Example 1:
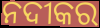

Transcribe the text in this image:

ନଦୀକର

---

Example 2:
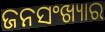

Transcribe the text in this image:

ଜନସଂଖ୍ଯାର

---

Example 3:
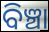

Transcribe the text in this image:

ବିଞ୍ଚା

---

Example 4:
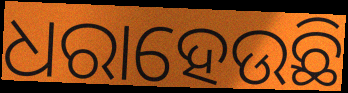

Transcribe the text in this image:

ଧରାହେଉଛି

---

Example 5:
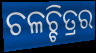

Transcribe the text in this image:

ଚଳଚ୍ଚିତ୍ରର